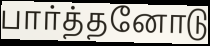
பார்த்தனோடு